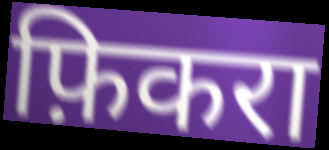
फ़िकरा